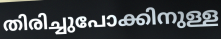
തിരിച്ചുപോക്കിനുള്ള